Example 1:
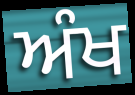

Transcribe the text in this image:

ਅੰਖ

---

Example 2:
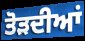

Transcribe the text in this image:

ਤੋੜਦੀਆਂ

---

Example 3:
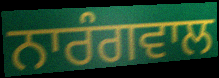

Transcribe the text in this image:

ਨਾਰੰਗਵਾਲ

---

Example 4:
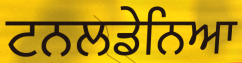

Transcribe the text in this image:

ਟਨਲਡੇਨਿਆ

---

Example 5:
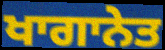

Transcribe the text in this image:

ਖਾਗਾਨੇਤ